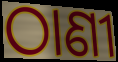
ଠାଣୀ